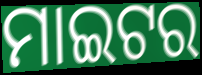
ମାଇଟର